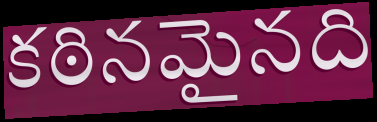
కఠినమైనది